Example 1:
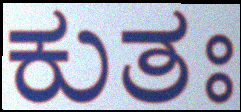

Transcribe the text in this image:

ಕುತಃ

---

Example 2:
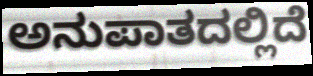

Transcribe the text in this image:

ಅನುಪಾತದಲ್ಲಿದೆ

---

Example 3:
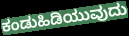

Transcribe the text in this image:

ಕಂಡುಹಿಡಿಯುವುದು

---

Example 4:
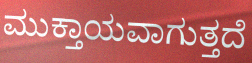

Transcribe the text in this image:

ಮುಕ್ತಾಯವಾಗುತ್ತದೆ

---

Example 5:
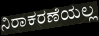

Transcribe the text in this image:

ನಿರಾಕರಣೆಯಲ್ಲ